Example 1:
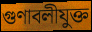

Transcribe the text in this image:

গুণাবলীযুক্ত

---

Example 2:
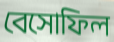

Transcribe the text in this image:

বেসোফিল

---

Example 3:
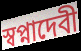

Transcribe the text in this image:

স্বপ্নাদেবী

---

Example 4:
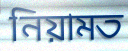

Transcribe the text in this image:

নিয়ামত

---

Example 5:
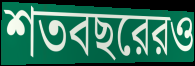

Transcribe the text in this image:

শতবছরেরও